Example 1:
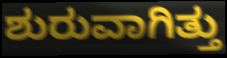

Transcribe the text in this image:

ಶುರುವಾಗಿತ್ತು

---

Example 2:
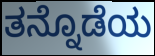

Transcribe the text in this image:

ತನ್ನೊಡೆಯ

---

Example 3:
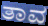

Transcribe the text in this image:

ತಾವ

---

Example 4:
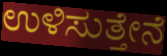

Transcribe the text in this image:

ಉಳಿಸುತ್ತೇನೆ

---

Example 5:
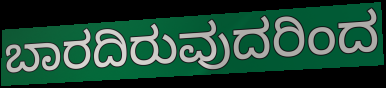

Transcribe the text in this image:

ಬಾರದಿರುವುದರಿಂದ